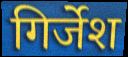
गिर्जेश